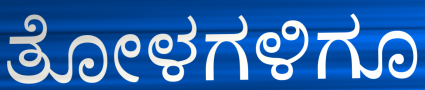
ತೋಳಗಳಿಗೂ